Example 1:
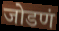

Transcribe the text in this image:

जोडणं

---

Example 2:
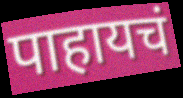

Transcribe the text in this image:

पाहायचं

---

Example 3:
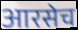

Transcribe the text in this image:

आरसेच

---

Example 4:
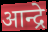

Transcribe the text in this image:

आन्द्रे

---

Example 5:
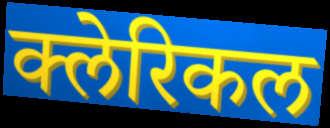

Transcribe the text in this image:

क्लेरिकल